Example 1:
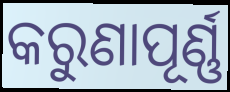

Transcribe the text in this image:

କରୁଣାପୂର୍ଣ୍ଣ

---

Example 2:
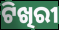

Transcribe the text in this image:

ଟିଖିରୀ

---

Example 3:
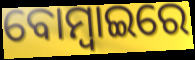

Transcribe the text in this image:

ବୋମ୍ୱାଇରେ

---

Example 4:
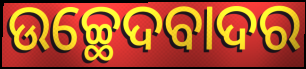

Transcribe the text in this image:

ଉଚ୍ଛେଦବାଦର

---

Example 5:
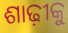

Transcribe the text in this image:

ଶାଢ଼ୀକୁ